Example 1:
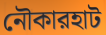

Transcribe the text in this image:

নৌকারহাট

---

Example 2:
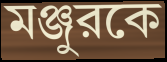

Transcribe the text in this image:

মঞ্জুরকে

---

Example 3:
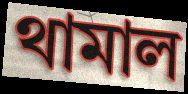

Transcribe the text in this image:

থামাল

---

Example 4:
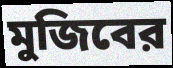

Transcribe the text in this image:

মুজিবের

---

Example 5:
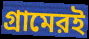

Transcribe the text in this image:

গ্রামেরই